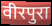
वीरपुरा